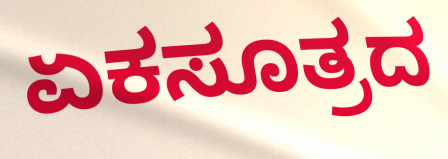
ಏಕಸೂತ್ರದ